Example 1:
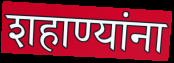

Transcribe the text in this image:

शहाण्यांना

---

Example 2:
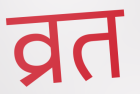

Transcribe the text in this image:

व्रत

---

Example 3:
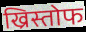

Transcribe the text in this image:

ख्रिस्तोफ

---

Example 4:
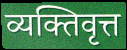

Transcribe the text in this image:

व्यक्तिवृत्त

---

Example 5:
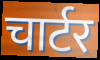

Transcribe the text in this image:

चार्टर